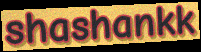
shashankk